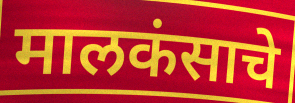
मालकंसाचे